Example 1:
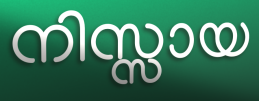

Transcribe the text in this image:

നിസ്സായ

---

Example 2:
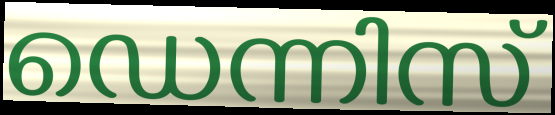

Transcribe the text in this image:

ഡെന്നിസ്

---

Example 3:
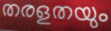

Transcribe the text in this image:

തരളതയും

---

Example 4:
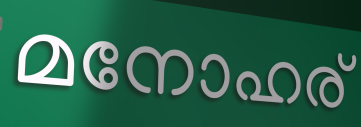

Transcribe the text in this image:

മനോഹര്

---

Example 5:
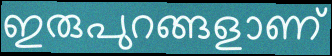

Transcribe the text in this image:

ഇരുപുറങ്ങളാണ്